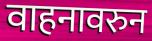
वाहनावरुन